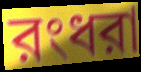
রংধরা